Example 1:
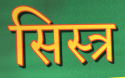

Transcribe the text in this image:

सिस्त्र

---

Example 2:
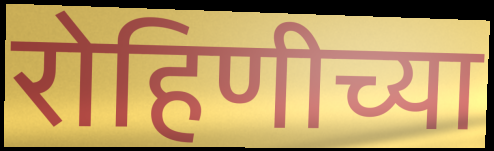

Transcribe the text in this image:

रोहिणीच्या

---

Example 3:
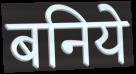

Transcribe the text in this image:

बनिये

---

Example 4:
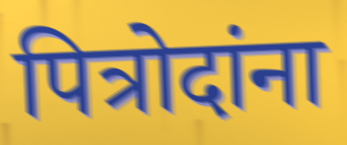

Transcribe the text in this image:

पित्रोदांना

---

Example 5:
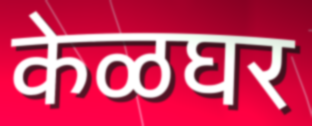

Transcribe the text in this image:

केळघर